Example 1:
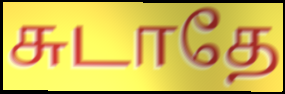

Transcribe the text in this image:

சுடாதே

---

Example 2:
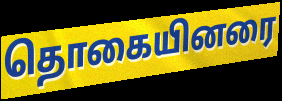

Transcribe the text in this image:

தொகையினரை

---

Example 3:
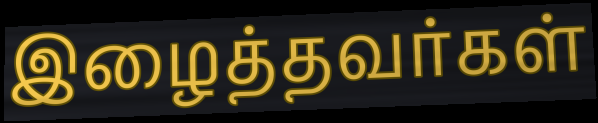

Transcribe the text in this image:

இழைத்தவர்கள்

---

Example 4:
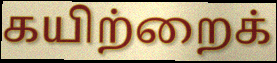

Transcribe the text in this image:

கயிற்றைக்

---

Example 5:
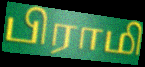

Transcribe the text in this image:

பிராமி